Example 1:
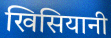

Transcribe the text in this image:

खिसियानी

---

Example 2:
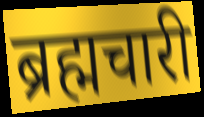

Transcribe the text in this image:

ब्रह्मचारी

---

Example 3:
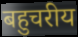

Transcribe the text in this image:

बहुचरीय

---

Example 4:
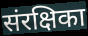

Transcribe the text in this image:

संरक्षिका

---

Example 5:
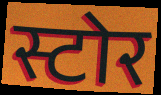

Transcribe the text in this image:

स्‍टोर